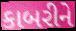
કાબરીને